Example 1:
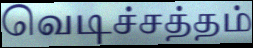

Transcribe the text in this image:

வெடிச்சத்தம்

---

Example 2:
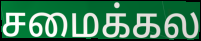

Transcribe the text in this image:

சமைக்கல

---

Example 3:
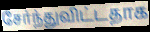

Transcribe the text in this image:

சேர்ந்துவிட்டதாக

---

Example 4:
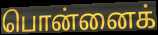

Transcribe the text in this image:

பொன்னைக்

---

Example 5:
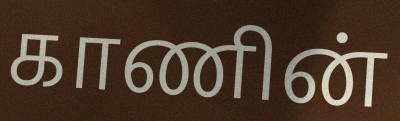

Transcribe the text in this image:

காணின்